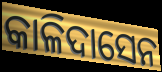
କାଳିଦାସେନ